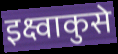
इक्ष्वाकुसे